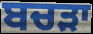
ਬਚੜਾ